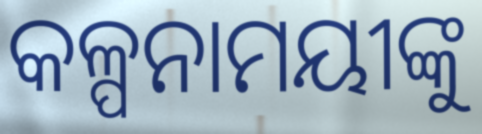
କଳ୍ପନାମୟୀଙ୍କୁ